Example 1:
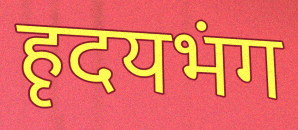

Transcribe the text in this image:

हृदयभंग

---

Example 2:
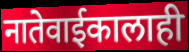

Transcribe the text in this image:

नातेवाईकालाही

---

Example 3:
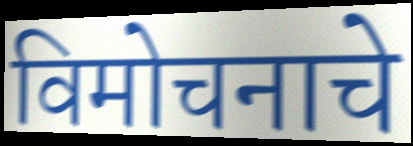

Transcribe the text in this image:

विमोचनाचे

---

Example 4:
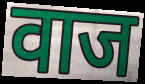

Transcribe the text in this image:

वाज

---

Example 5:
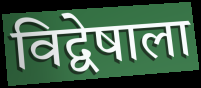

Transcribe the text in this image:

विद्वेषाला